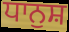
ਧਾਨੁਸ਼